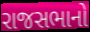
રાજસભાનો